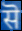
सॆ